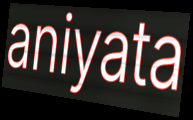
aniyata